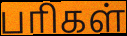
பரிகள்